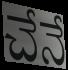
చేనే